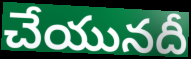
చేయునదీ